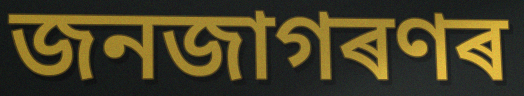
জনজাগৰণৰ